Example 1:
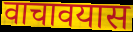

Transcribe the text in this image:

वाचावयास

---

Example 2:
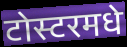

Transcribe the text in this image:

टोस्टरमधे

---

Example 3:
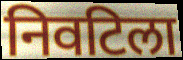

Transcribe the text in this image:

निवटिला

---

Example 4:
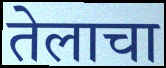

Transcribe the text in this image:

तेलाचा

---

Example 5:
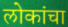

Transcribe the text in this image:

लोकांचा